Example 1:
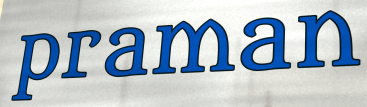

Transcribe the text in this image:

praman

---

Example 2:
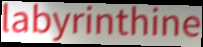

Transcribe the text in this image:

labyrinthine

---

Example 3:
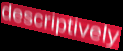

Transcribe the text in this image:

descriptively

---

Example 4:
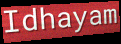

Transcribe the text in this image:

Idhayam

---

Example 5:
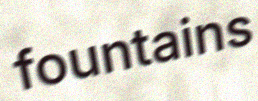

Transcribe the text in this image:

fountains